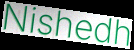
Nishedh